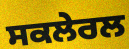
ਸਕਲੇਰਲ